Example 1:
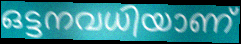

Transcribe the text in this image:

ഒട്ടനവധിയാണ്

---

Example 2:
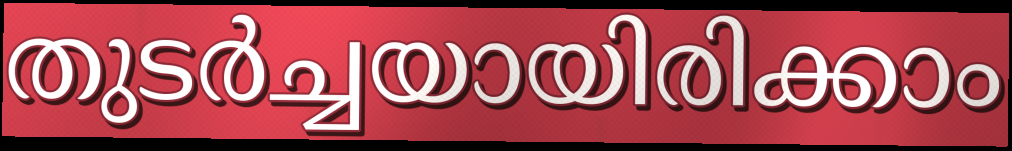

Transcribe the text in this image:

തുടർച്ചയായിരിക്കാം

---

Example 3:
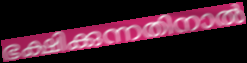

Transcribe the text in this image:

ഭക്ഷിക്കുന്നതിനാൽ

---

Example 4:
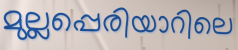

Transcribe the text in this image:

മുല്ലപ്പെരിയാറിലെ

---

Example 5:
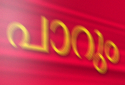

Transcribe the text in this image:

പാറും